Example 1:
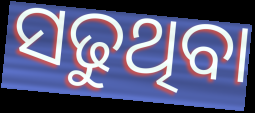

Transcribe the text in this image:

ସଢୁଥିବା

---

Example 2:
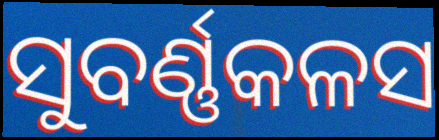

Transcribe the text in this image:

ସୁବର୍ଣ୍ଣକଳସ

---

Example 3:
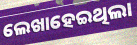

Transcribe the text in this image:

ଲେଖାହେଇଥିଲା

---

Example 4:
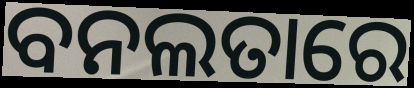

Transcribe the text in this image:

ବନଲତାରେ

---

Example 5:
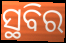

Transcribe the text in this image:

ସ୍ଥବିର